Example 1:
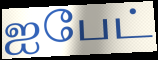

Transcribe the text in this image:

ஐபேட்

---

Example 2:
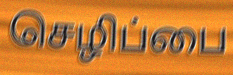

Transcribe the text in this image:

செழிப்பை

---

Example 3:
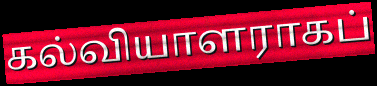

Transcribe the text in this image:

கல்வியாளராகப்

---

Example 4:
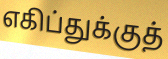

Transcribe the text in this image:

எகிப்துக்குத்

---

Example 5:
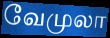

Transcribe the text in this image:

வேமுலா